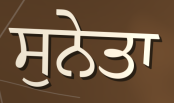
ਸੁਨੇਤਾ